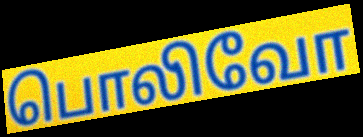
பொலிவோ